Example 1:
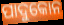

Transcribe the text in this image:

ପାଦୁକୋନ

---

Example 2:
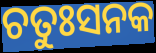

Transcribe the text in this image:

ଚତୁଃସନକ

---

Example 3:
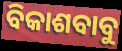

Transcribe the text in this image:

ବିକାଶବାବୁ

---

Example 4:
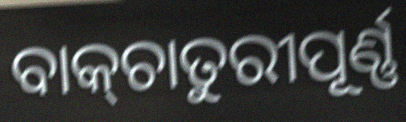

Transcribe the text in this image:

ବାକ୍‌ଚାତୁରୀପୂର୍ଣ୍ଣ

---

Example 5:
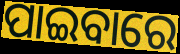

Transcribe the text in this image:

ପାଇବାରେ